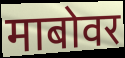
माबोवर